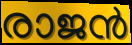
രാജൻ